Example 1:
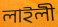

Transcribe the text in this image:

লাইলী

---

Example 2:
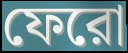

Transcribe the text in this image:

ফেরো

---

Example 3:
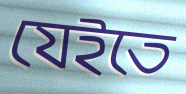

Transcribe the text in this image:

যেইতে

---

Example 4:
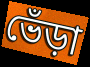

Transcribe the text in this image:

ভেঁড়া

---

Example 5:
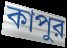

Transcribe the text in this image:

কাপুর